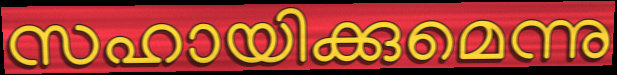
സഹായിക്കുമെന്നു